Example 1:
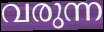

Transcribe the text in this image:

വരുന്ന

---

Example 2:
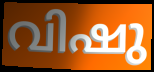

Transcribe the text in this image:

വിഷു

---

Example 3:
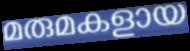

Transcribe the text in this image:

മരുമകളായ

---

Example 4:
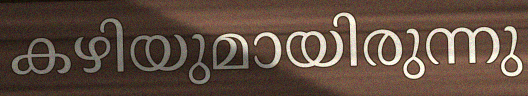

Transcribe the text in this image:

കഴിയുമായിരുന്നു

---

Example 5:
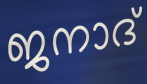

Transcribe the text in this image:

ജനാദ്